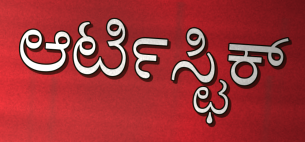
ಆರ್ಟಿಸ್ಟಿಕ್